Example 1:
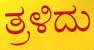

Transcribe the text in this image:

ತ್ರಳಿದು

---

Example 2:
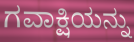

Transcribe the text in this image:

ಗವಾಕ್ಷಿಯನ್ನು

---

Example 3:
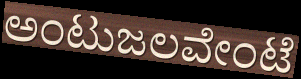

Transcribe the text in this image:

ಅಂಟುಜಲವೇಂಟೆ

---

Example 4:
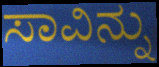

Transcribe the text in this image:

ಸಾವಿನ್ನು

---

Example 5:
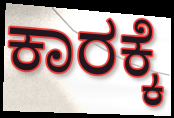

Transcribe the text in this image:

ಕಾರಕ್ಕೆ